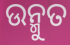
ଉନ୍ମୁତ